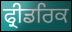
ਫ੍ਰੀਡਰਿਕ